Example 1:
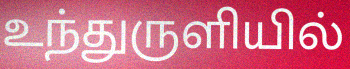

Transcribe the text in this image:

உந்துருளியில்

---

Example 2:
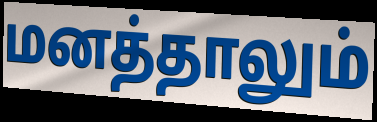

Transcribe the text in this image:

மனத்தாலும்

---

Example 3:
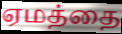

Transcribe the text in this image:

ஏமத்தை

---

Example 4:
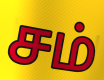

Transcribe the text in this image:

சம்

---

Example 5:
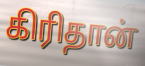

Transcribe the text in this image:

கிரிதான்